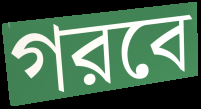
গরবে